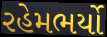
રહેમભર્યો